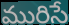
మురిసే